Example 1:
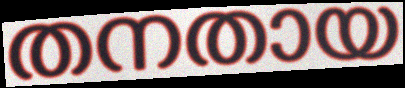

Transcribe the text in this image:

തനതായ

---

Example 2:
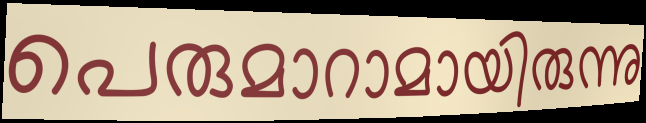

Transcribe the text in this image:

പെരുമാറാമായിരുന്നു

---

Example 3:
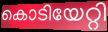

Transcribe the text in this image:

കൊടിയേറ്റി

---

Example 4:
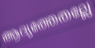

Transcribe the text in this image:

ആദ്യത്തേതല്ലേ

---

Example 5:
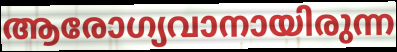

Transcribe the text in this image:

ആരോഗ്യവാനായിരുന്ന